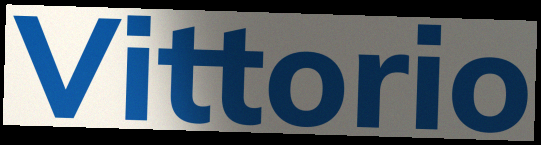
Vittorio